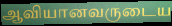
ஆவியானவருடைய